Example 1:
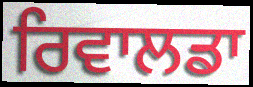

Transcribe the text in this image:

ਰਿਵਾਲਡਾ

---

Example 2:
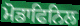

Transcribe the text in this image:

ਮੋਡਾਫਿਨਿਲ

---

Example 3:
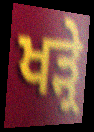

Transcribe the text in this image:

ਖੜ੍ਰੇ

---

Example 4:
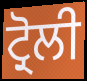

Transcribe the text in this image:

ਟ੍ਰੋਲੀ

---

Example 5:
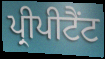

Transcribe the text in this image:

ਪ੍ਰੀਪੀਟੈਂਟ